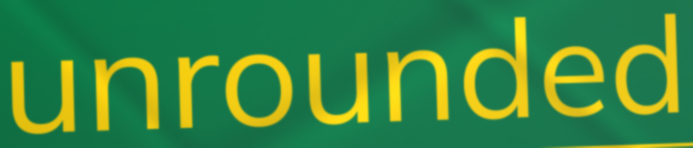
unrounded